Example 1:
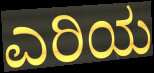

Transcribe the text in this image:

ಎರಿಯ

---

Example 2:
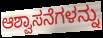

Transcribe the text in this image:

ಆಶ್ವಾಸನೆಗಳನ್ನು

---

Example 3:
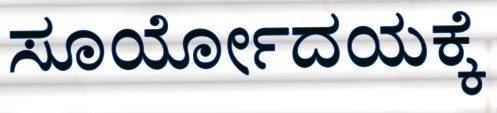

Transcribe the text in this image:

ಸೂರ್ಯೋದಯಕ್ಕೆ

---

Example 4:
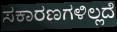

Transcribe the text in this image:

ಸಕಾರಣಗಳಿಲ್ಲದೆ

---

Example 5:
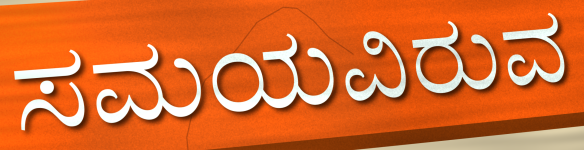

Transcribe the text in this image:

ಸಮಯವಿರುವ